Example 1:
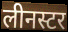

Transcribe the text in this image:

लीनस्टर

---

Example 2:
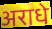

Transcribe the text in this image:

अराधे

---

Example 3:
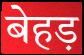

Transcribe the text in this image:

बेहड़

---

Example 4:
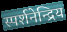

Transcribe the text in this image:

स्पर्शनेन्द्रिय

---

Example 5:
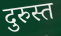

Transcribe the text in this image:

दुरुस्त